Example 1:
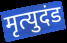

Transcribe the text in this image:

मृत्युदंड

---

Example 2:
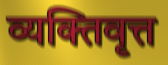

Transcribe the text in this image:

व्यक्तिवृत्त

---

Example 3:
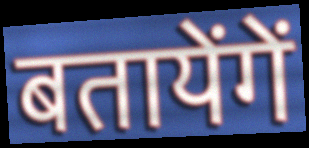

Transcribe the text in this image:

बतायेंगें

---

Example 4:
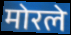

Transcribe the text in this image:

मोरले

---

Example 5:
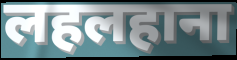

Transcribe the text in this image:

लहलहाना